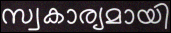
സ്വകാര്യമായി